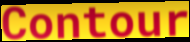
Contour